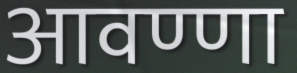
आवण्णा